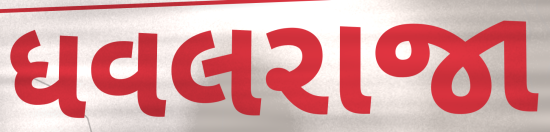
ધવલરાજા